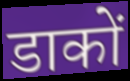
डाकों